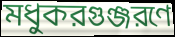
মধুকরগুঞ্জরণে